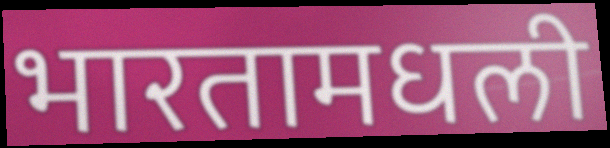
भारतामधली